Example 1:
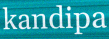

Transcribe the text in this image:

kandipa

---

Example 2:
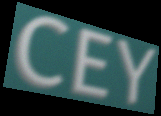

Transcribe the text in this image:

CEY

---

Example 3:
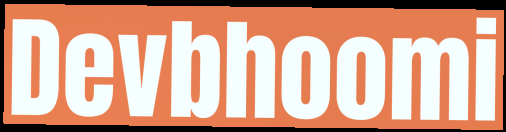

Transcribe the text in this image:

Devbhoomi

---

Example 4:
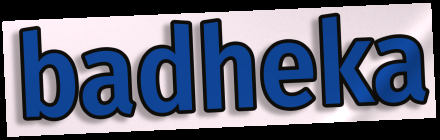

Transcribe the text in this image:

badheka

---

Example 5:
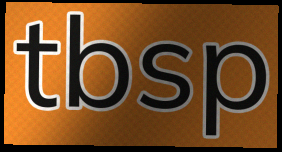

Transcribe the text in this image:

tbsp